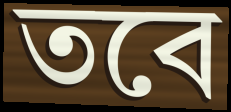
তবে